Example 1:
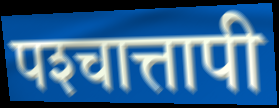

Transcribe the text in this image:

पश्‍चात्तापी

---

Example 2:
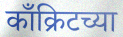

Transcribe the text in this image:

काँक्रिटच्या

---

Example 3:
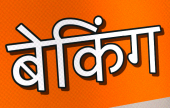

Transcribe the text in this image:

बेकिंग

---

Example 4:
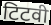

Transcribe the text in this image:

टिटवी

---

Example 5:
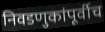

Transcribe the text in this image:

निवडणुकांपूर्वीच